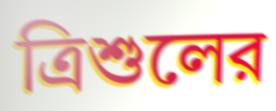
ত্রিশুলের